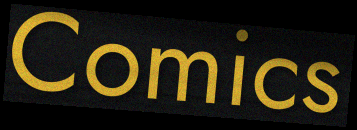
Comics